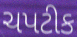
ચપટીક